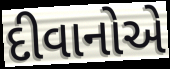
દીવાનોએ